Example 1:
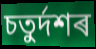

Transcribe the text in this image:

চতুৰ্দশৰ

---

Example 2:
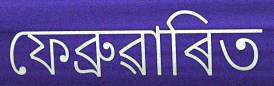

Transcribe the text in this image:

ফেব্ৰুৱাৰিত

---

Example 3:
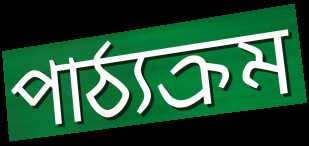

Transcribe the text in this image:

পাঠ্যক্ৰম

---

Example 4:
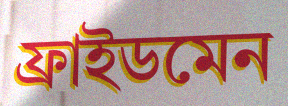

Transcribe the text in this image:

ফ্ৰাইডমেন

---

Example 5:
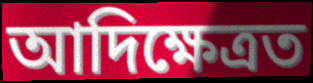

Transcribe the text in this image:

আদিক্ষেত্ৰত